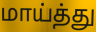
மாய்த்து